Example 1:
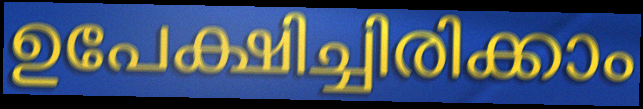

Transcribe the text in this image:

ഉപേക്ഷിച്ചിരിക്കാം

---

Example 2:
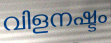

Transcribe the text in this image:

വിളനഷ്ടം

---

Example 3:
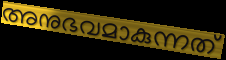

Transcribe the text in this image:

അനുഭവമാകുന്നത്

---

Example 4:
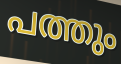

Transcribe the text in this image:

പത്തും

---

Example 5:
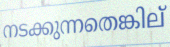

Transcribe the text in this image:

നടക്കുന്നതെങ്കില്